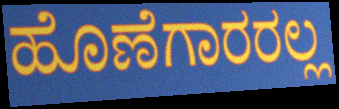
ಹೊಣೆಗಾರರಲ್ಲ